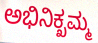
ಅಭಿನಿಕ್ಖಮ್ಮ